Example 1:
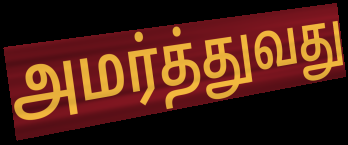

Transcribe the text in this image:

அமர்த்துவது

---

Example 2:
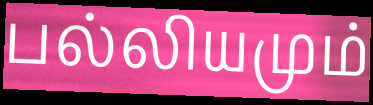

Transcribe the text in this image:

பல்லியமும்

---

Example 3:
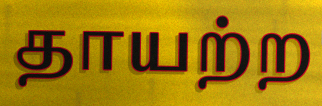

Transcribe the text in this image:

தாயற்ற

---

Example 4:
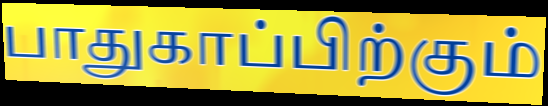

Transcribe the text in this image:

பாதுகாப்பிற்கும்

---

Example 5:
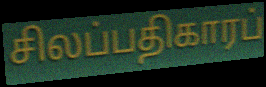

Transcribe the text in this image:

சிலப்பதிகாரப்